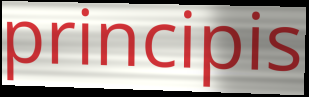
principis